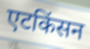
एटकिंसन